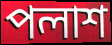
পলাশ